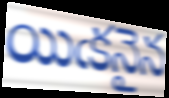
యిఁకనైన